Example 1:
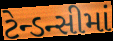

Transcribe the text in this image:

ટેન્ડન્સીમાં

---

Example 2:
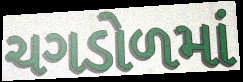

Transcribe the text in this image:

ચગડોળમાં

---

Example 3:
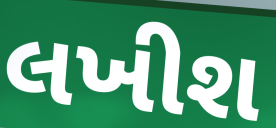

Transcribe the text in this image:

લખીશ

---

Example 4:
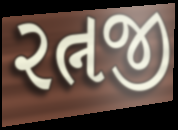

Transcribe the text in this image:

રત્નજી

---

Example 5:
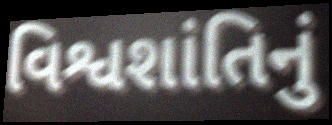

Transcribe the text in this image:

વિશ્વશાંતિનું